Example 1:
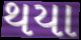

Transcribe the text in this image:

થયા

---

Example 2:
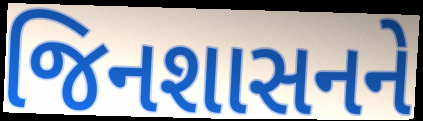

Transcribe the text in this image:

જિનશાસનને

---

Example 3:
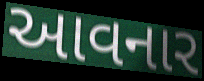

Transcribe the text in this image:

આવનાર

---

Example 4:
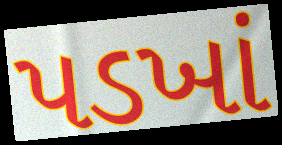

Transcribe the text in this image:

પડખાં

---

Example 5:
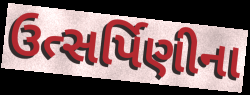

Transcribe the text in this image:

ઉત્સર્પિણીના